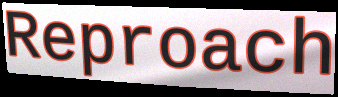
Reproach